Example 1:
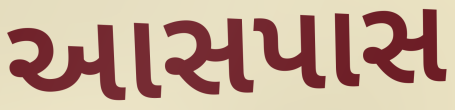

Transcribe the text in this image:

આસપાસ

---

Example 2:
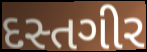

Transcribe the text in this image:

દસ્તગીર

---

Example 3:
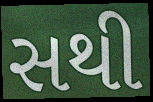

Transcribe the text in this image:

સથી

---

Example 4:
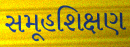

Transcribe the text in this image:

સમૂહશિક્ષણ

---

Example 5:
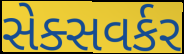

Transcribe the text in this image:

સેક્સવર્કર